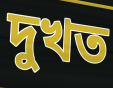
দুখত